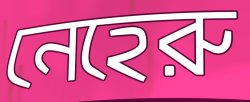
নেহেরু